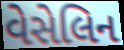
વેસેલિન